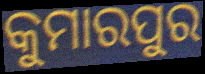
କୁମାରପୁର